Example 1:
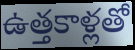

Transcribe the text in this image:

ఉత్తకాళ్లతో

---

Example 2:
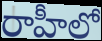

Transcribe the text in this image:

రాహీలో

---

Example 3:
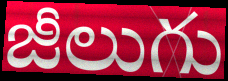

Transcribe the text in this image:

జీలుగు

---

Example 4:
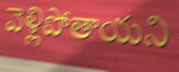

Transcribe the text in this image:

వెళ్లిపోతాయని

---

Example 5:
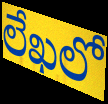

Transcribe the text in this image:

లేఖలో